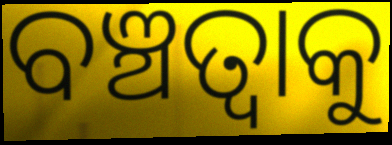
ବଞ୍ଚତ୍ବାକୁ